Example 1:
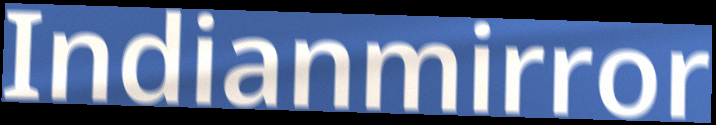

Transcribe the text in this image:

Indianmirror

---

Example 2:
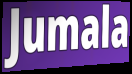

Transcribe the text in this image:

Jumala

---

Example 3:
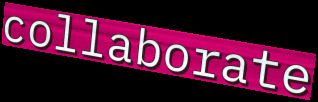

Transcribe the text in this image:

collaborate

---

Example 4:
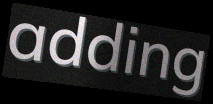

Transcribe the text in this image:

adding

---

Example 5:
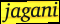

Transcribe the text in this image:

jagani